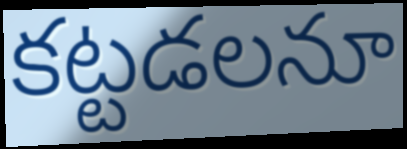
కట్టడలనూ